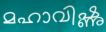
മഹാവിഷ്ണു